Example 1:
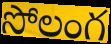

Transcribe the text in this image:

సోలంగ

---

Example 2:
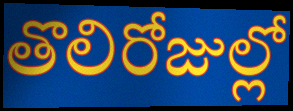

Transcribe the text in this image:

తొలిరోజుల్లో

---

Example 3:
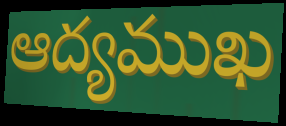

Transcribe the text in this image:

ఆద్యముఖ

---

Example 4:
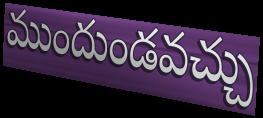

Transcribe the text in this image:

ముందుండవచ్చు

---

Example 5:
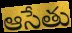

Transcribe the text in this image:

ఆసేతు